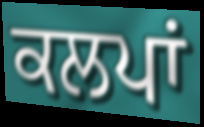
ਕਲਪਾਂ